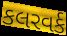
કલરવર્ક